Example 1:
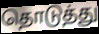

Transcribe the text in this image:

தொடுத்து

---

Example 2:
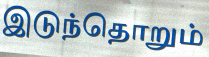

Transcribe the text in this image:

இடுந்தொறும்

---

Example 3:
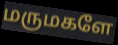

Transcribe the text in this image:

மருமகளே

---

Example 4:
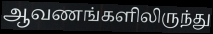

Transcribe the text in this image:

ஆவணங்களிலிருந்து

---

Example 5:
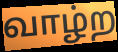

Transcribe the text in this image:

வாழ்ற